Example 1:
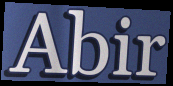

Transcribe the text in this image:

Abir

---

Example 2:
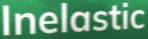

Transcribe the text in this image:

Inelastic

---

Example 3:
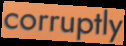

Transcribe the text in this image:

corruptly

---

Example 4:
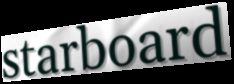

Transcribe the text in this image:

starboard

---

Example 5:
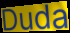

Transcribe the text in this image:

Duda